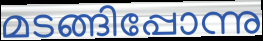
മടങ്ങിപ്പോന്നു